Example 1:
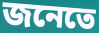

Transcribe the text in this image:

জনেতে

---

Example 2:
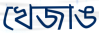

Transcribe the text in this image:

খেজাঙ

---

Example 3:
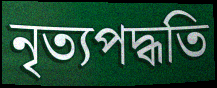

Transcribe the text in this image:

নৃত্যপদ্ধতি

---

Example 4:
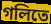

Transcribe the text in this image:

গলিতে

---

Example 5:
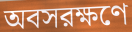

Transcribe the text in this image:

অবসরক্ষণে